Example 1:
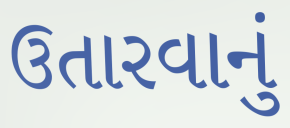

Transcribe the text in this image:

ઉતારવાનું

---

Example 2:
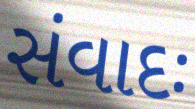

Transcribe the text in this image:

સંવાદઃ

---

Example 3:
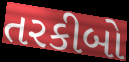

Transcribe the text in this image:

તરકીબો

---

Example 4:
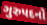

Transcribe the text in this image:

ગુરુપદનો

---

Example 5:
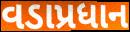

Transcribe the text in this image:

વડાપ્રધાન